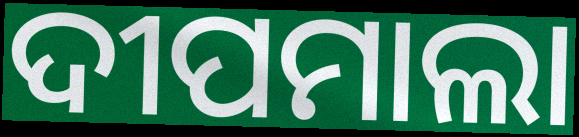
ଦୀପମାଲା